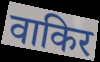
वाकिर